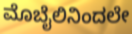
ಮೊಬೈಲಿನಿಂದಲೇ